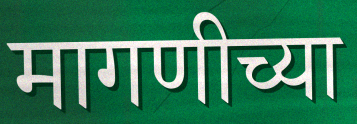
मागणीच्या